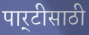
पार्टीसाठी